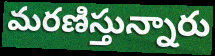
మరణిస్తున్నారు